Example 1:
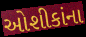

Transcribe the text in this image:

ઓશીકાંના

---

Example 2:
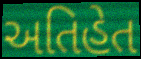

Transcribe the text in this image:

અતિહેત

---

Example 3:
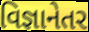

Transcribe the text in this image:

વિજ્ઞાનેતર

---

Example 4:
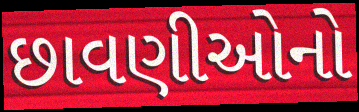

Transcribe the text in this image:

છાવણીઓનો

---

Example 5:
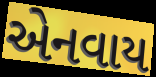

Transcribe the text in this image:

એનવાય